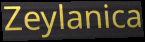
Zeylanica